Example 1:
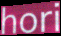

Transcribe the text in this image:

hori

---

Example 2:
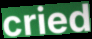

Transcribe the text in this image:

cried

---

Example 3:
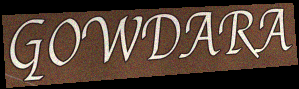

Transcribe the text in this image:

GOWDARA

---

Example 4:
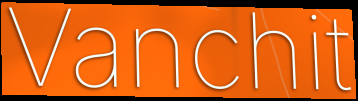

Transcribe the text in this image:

Vanchit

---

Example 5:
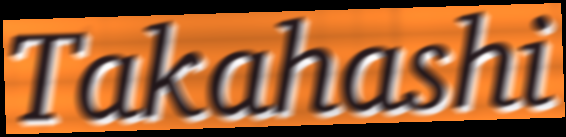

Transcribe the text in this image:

Takahashi